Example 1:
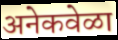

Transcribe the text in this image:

अनेकवेळा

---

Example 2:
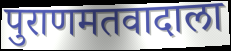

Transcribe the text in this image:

पुराणमतवादाला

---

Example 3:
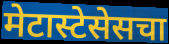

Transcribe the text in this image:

मेटास्टेसेसचा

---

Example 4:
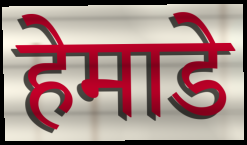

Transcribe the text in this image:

हेमाडे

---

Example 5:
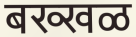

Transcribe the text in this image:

बख्खळ